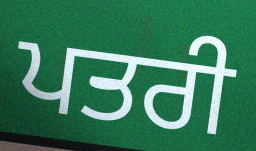
ਪਤਰੀ